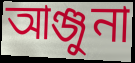
আঞ্জুনা